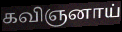
கவிஞனாய்